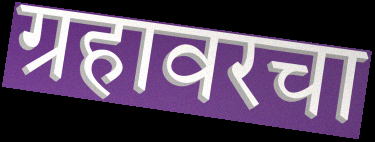
ग्रहावरचा